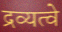
द्रव्यत्वे